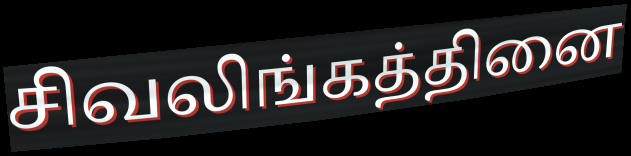
சிவலிங்கத்தினை